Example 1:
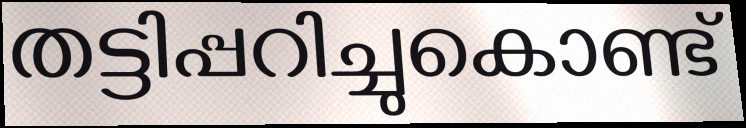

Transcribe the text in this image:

തട്ടിപ്പറിച്ചുകൊണ്ട്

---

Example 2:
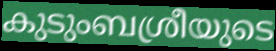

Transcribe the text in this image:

കുടുംബശ്രീയുടെ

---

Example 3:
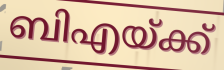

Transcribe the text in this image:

ബിഎയ്ക്ക്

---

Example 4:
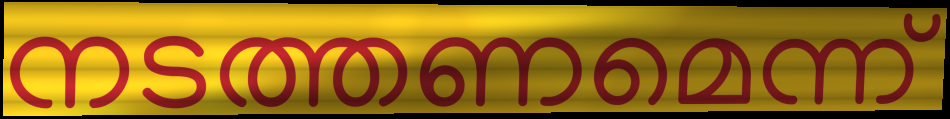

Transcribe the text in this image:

നടത്തണമെന്ന്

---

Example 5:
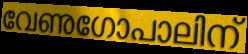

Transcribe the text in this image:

വേണുഗോപാലിന്